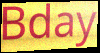
Bday